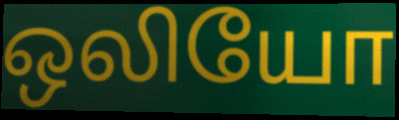
ஒலியோ